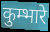
कुम्भारे